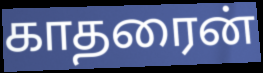
காதரைன்